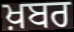
ਖ਼ਬਰ